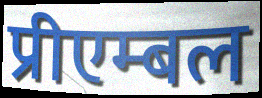
प्रीएम्बल